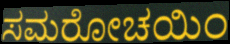
ಸಮರೋಚಯಿಂ